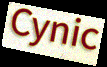
Cynic